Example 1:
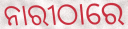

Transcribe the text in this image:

ନାରୀଠାରେ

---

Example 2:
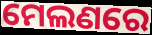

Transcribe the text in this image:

ମେଲଣରେ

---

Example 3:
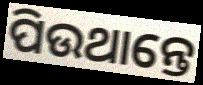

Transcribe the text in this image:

ପିଉଥାନ୍ତେ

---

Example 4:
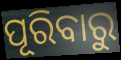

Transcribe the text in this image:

ପୂରିବାରୁ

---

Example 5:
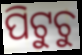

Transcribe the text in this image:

ପିଟୁଚୁ